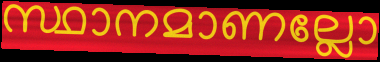
സ്ഥാനമാണല്ലോ